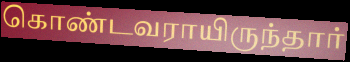
கொண்டவராயிருந்தார்